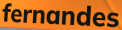
fernandes